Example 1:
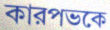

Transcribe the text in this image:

কারপভকে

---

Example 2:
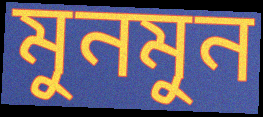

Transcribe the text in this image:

মুনমুন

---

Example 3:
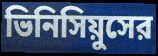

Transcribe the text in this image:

ভিনিসিয়ুসের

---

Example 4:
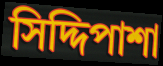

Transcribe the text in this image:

সিদ্দিপাশা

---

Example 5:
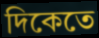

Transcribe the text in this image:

দিকেতে